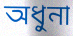
অধুনা